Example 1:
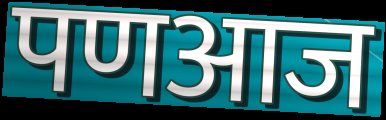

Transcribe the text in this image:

पणआज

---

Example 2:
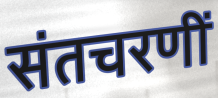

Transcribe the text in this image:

संतचरणीं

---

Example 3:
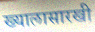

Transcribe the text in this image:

ख्यालासारखी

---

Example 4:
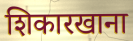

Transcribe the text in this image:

शिकारखाना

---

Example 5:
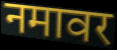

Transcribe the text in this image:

नमावर